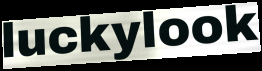
luckylook